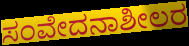
ಸಂವೇದನಾಶೀಲರ